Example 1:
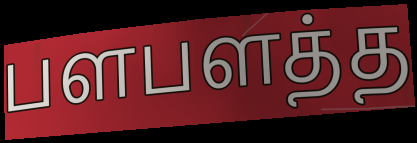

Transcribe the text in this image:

பளபளத்த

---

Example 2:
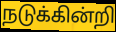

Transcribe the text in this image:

நடுக்கின்றி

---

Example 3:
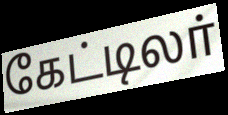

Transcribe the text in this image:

கேட்டிலர்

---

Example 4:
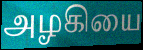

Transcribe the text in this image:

அழகியை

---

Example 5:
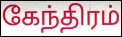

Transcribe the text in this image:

கேந்திரம்